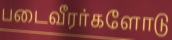
படைவீரர்களோடு